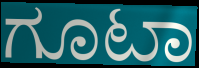
ಗೂಟಾ